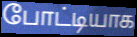
போட்டியாக